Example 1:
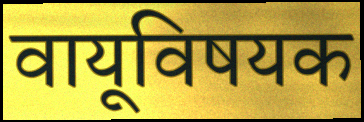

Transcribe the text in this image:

वायूविषयक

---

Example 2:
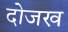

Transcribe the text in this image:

दोजख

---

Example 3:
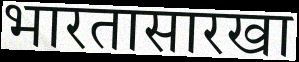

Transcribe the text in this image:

भारतासारखा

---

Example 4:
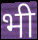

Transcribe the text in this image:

भी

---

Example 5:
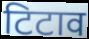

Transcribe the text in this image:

टिटाव